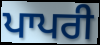
ਪਾਪਰੀ